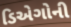
ડિએગોની